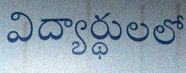
విద్యార్థులలో